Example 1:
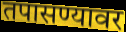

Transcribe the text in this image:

तपासण्यावर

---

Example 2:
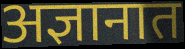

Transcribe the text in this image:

अज्ञानात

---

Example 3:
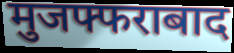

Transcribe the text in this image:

मुजफ्फराबाद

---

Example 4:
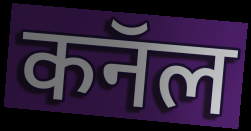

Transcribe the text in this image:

कनॅल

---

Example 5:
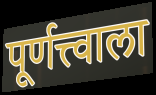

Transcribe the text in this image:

पूर्णत्त्वाला